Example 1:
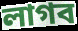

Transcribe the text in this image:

লাগব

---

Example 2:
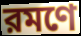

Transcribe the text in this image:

রমণে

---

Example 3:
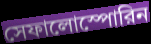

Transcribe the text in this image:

সেফালোস্পোরিন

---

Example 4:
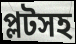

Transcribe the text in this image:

প্লটসহ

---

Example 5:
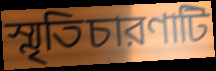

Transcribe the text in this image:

স্মৃতিচারণাটি